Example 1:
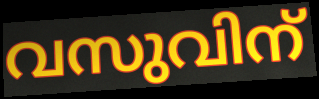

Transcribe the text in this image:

വസുവിന്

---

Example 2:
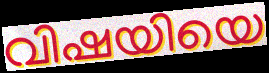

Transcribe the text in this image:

വിഷയിയെ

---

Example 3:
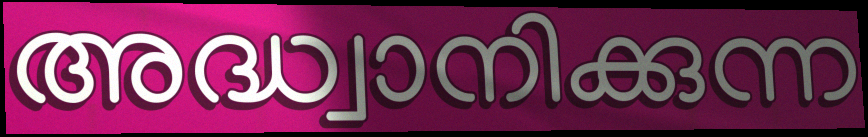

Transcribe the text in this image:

അദ്ധ്വാനിക്കുന്ന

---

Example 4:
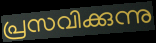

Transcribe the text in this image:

പ്രസവിക്കുന്നു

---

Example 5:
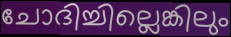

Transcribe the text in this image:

ചോദിച്ചില്ലെങ്കിലും